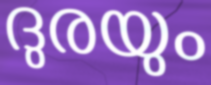
ദുരയും